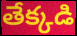
తేక్కడి